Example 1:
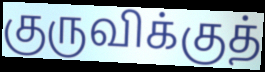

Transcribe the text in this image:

குருவிக்குத்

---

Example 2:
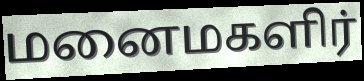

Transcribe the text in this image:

மனைமகளிர்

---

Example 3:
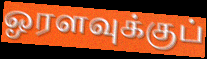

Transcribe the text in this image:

ஓரளவுக்குப்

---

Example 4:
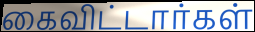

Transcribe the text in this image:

கைவிட்டார்கள்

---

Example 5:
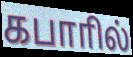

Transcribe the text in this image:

கபாரில்